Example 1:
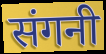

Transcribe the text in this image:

संगनी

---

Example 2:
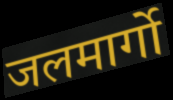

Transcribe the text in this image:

जलमार्गो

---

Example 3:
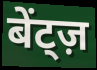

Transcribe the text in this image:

बेंट्ज़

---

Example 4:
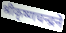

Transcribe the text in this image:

श्रीकृष्णचन्द्रने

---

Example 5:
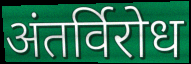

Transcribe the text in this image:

अंतर्विरोध